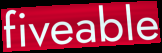
fiveable